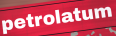
petrolatum